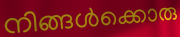
നിങ്ങൾക്കൊരു